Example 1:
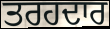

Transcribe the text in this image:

ਤਰਹਦਾਰ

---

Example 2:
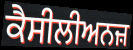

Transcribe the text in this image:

ਕੈਸੀਲੀਅਨਜ਼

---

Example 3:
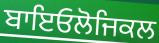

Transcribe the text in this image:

ਬਾਇਓਲੋਜਿਕਲ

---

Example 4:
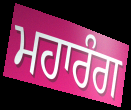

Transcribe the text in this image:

ਮਹਾਰੰਗ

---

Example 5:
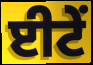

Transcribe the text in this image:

ਈਟੇਂ